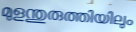
മുളന്തുരുത്തിയിലും